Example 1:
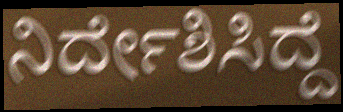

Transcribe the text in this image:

ನಿರ್ದೇಶಿಸಿದ್ದೆ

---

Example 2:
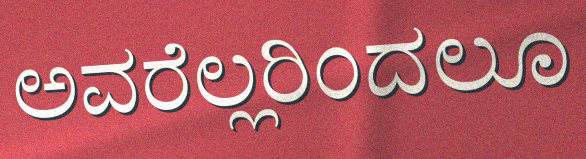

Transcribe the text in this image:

ಅವರೆಲ್ಲರಿಂದಲೂ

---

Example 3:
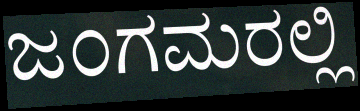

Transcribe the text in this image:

ಜಂಗಮರಲ್ಲಿ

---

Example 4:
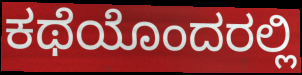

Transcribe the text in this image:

ಕಥೆಯೊಂದರಲ್ಲಿ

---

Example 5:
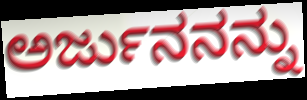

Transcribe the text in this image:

ಅರ್ಜುನನನ್ನು